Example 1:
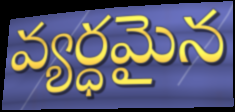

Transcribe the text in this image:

వ్యర్ధమైన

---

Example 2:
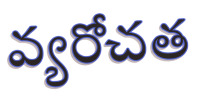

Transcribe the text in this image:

వ్యరోచత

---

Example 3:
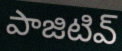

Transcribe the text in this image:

పాజిటివ్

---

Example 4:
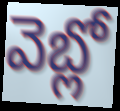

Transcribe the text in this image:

వెబ్లో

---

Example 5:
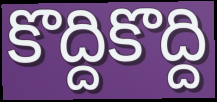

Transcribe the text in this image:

కొద్దికొద్ది